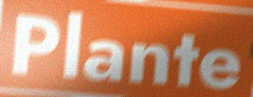
Plante